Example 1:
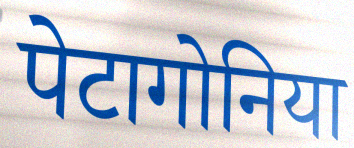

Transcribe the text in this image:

पेटागोनिया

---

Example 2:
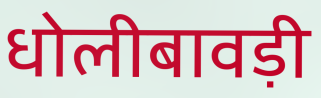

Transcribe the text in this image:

धोलीबावड़ी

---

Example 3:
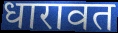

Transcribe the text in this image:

धारावत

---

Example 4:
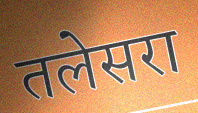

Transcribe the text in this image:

तलेसरा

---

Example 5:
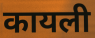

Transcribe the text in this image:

कायली